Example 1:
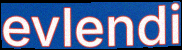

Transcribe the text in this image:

evlendi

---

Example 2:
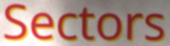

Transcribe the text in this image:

Sectors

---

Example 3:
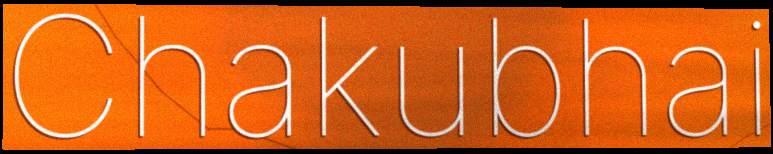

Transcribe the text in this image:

Chakubhai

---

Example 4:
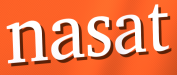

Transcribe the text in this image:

nasat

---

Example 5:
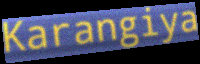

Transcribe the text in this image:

Karangiya